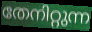
തേനിറ്റുന്ന